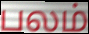
பலம்